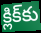
క్లిక్‌కు